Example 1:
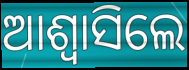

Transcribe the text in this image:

ଆଶ୍ୱାସିଲେ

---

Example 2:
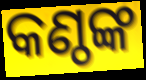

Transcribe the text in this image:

କଣ୍ଠଙ୍କ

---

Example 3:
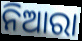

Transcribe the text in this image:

ନିଆରା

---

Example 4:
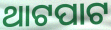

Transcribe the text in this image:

ଥାଟପାଟ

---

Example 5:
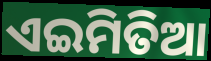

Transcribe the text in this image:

ଏଇମିତିଆ